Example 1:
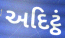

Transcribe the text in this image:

અદિટ્ઠં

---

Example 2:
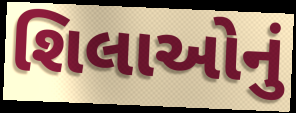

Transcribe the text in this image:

શિલાઓનું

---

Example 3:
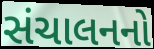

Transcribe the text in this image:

સંચાલનનો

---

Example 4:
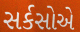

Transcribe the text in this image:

સર્કસોએ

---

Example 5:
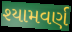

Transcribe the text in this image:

શ્યામવર્ણ